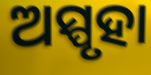
ଅସ୍ପୃହା